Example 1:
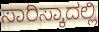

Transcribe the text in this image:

ಸಾರಿಸ್ಕಾದಲ್ಲಿ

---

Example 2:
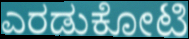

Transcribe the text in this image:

ಎರಡುಕೋಟಿ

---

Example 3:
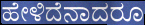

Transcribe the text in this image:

ಹೇಳಿದೆನಾದರೂ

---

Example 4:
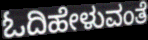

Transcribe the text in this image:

ಓದಿಹೇಳುವಂತೆ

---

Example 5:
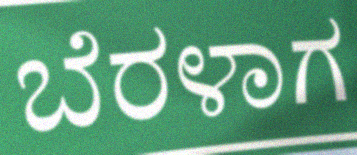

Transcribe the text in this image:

ಬೆರಳಾಗ